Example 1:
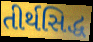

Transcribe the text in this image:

તીર્થસિદ્ધ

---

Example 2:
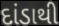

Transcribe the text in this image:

દાંડાથી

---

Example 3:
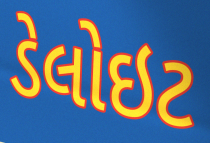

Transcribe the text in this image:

ડેલોઇટ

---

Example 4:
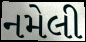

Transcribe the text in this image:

નમેલી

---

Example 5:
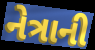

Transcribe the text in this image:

નેત્રાની